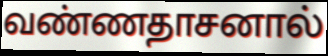
வண்ணதாசனால்